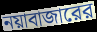
নয়াবাজারের